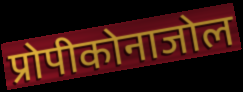
प्रोपीकोनाजोल